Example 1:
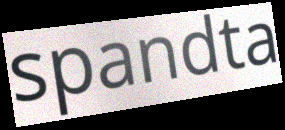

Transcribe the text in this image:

spandta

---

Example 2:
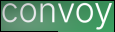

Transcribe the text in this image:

convoy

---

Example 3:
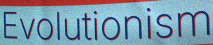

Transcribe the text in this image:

Evolutionism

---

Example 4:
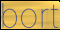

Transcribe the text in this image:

bort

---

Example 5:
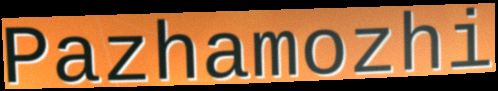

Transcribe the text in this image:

Pazhamozhi